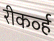
रीकर्व्ह